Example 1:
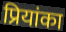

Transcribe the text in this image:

प्रियांका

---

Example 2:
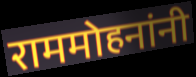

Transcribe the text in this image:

राममोहनांनी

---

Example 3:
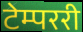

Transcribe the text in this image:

टेम्पररी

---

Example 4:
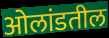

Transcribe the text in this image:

ओलांडतील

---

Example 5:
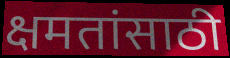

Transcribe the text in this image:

क्षमतांसाठी